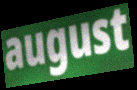
august